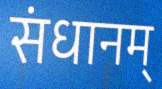
संधानम्